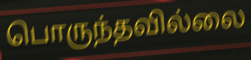
பொருந்தவில்லை